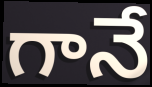
గానే